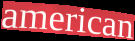
american